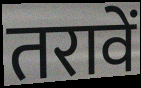
तरावें